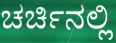
ಚರ್ಚಿನಲ್ಲಿ